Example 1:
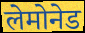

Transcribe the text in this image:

लेमोनेड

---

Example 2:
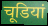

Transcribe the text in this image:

चूडियां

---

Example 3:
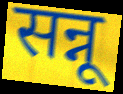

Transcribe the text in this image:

सन्नू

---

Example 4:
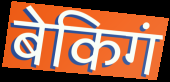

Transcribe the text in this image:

बेकिगं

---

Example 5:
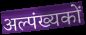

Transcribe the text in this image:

अल्पंख्यकों